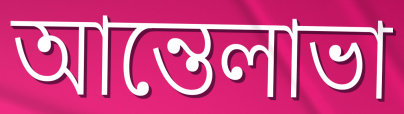
আন্তেলাভা